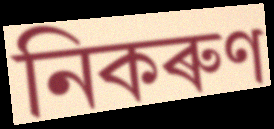
নিকৰুণ